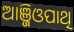
ଆଞ୍ଜିଓପାଥି